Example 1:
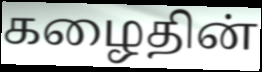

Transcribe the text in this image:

கழைதின்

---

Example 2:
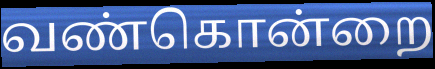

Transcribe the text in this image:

வண்கொன்றை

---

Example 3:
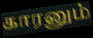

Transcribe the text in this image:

காரனும்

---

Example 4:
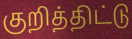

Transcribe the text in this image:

குறித்திட்டு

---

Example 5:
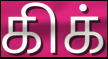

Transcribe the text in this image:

கிக்